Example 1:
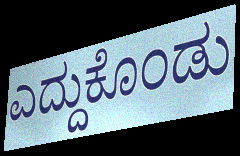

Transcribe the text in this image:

ಎದ್ದುಕೊಂಡು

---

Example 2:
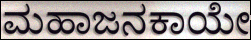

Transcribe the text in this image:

ಮಹಾಜನಕಾಯೇ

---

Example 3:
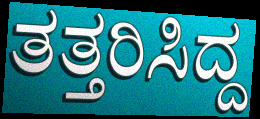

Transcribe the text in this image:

ತತ್ತರಿಸಿದ್ದ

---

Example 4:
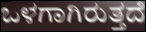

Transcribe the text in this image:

ಒಳಗಾಗಿರುತ್ತದೆ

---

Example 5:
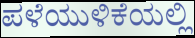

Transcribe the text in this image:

ಪಳೆಯುಳಿಕೆಯಲ್ಲಿ